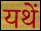
यथें